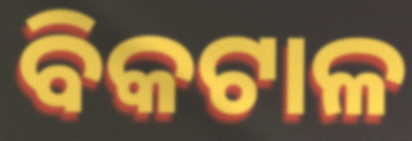
ବିକଟାଳ